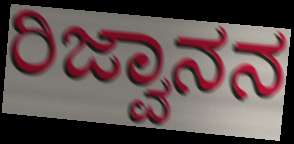
ರಿಜ್ವಾನನ